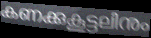
കണക്കുകൂട്ടലിനും